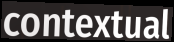
contextual